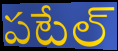
పటేల్